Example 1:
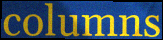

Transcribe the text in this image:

columns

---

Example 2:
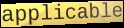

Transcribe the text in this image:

applicable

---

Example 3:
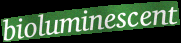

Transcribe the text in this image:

bioluminescent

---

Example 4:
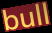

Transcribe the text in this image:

bull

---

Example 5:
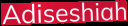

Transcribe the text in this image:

Adiseshiah